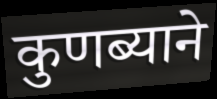
कुणब्याने